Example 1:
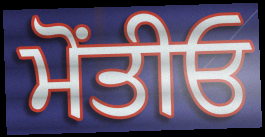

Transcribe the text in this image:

ਮੋਂਤੀਓ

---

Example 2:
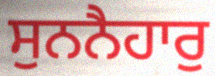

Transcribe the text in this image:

ਸੁਨਨੈਹਾਰੁ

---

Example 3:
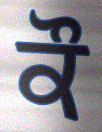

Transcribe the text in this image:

ਕੌ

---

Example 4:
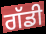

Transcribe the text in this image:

ਗੱਡੀ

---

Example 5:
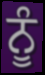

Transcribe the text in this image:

ਨੂੰ